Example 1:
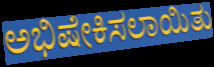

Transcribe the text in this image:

ಅಭಿಷೇಕಿಸಲಾಯಿತು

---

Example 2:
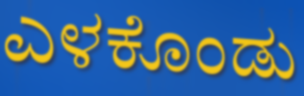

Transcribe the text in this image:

ಎಳಕೊಂಡು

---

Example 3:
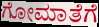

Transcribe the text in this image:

ಗೋಮಾತೆಗೆ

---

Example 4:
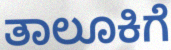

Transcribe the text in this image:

ತಾಲೂಕಿಗೆ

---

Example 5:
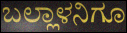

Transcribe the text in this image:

ಬಲ್ಲಾಳನಿಗೂ